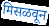
मिसळवून